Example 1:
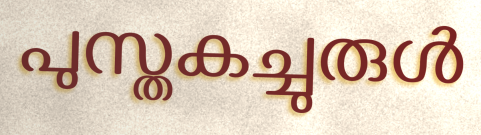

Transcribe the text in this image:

പുസ്തകച്ചുരുൾ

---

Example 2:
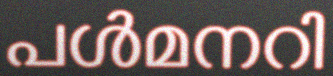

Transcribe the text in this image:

പൾമനറി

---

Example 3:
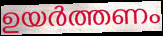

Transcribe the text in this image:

ഉയർത്തണം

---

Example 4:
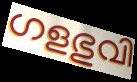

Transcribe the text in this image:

ഗളഭുവി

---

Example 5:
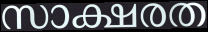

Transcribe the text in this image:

സാക്ഷരത